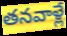
తనవాళ్లే